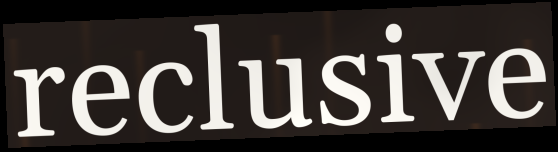
reclusive